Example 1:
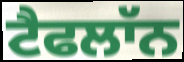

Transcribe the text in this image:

ਟੈਫਲਾੱਨ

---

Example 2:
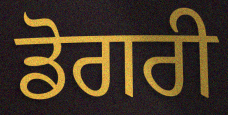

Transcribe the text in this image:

ਡੋਗਰੀ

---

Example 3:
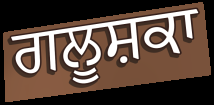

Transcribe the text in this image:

ਗਲੂਸ਼ਕਾ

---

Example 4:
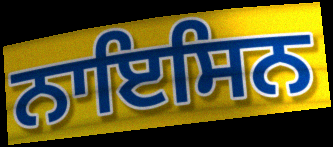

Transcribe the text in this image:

ਨਾਇਸਿਨ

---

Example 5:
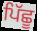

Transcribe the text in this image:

ਪਿੱਛੂ